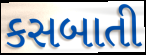
કસબાતી